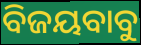
ବିଜୟବାବୁ